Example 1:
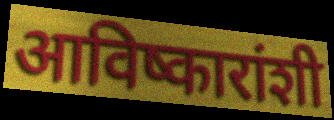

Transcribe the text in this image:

आविष्कारांशी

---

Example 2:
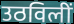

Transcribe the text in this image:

उठविलीं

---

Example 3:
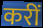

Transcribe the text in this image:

करीं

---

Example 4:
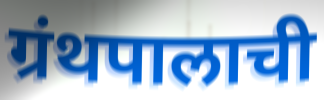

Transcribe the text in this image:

ग्रंथपालाची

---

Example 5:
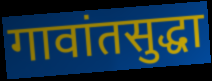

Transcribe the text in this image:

गावांतसुद्धा